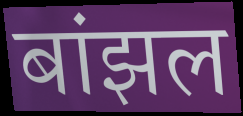
बांझल